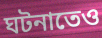
ঘটনাতেও